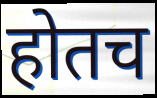
होतच